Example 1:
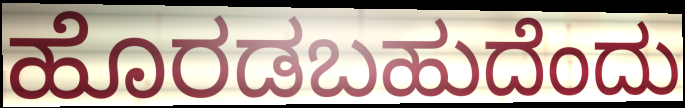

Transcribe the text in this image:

ಹೊರಡಬಹುದೆಂದು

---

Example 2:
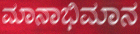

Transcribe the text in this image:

ಮಾನಾಭಿಮಾನ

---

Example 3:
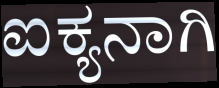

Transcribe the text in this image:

ಐಕ್ಯನಾಗಿ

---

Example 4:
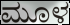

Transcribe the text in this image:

ಮೂಳ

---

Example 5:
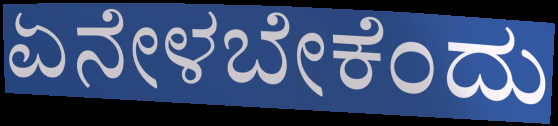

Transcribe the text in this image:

ಏನೇಳಬೇಕೆಂದು